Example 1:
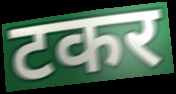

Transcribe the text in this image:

टकर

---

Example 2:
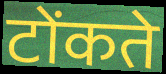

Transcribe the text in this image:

टोंकते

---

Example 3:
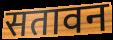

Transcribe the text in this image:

सतावन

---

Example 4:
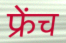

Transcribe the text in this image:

फ्रेंच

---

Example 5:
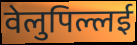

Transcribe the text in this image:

वेलुपिल्लई